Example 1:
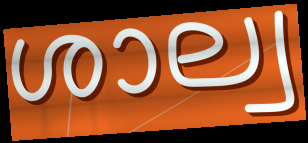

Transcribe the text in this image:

ശാല്വ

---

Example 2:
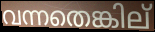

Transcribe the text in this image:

വന്നതെങ്കില്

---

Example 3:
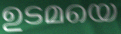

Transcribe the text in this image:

ഉടമയെ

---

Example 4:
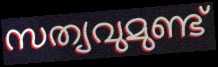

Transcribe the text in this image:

സത്യവുമുണ്ട്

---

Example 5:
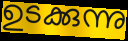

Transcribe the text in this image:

ഉടക്കുന്നു